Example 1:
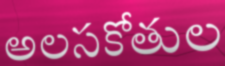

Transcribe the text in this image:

అలసకోతుల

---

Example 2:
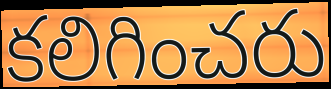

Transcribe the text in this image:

కలిగించరు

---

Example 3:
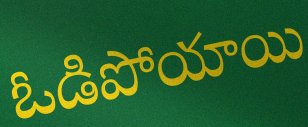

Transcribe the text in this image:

ఓడిపోయాయి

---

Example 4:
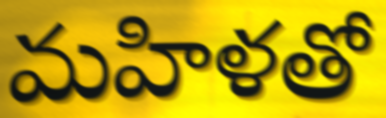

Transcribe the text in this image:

మహిళతో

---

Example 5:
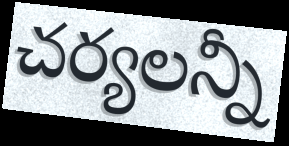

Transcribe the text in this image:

చర్యలన్నీ